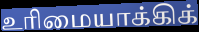
உரிமையாக்கிக்